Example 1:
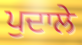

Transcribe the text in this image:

ਪੁਦਾਲੇ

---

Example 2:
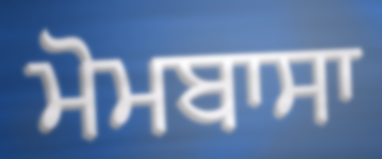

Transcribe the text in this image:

ਮੋਮਬਾਸਾ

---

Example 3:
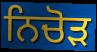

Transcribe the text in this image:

ਨਿਚੋਡ਼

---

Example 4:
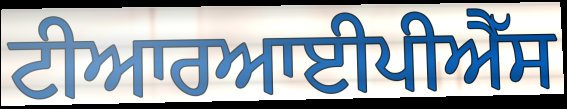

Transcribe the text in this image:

ਟੀਆਰਆਈਪੀਐੱਸ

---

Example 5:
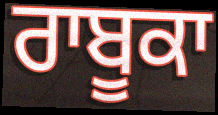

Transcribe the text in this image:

ਰਾਬੂਕਾ